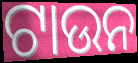
ଟାଉନ